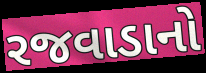
રજવાડાનો